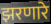
झरणारे